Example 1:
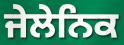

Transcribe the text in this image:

ਜੇਲੇਨਿਕ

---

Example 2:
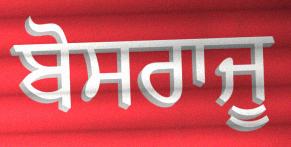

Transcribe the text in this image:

ਬੋਸਰਾਜੂ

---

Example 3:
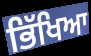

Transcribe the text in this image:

ਭਿੱਖਿਆ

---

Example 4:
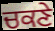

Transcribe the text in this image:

ਚਕਣੇ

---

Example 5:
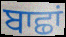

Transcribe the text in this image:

ਬਾਛਾਂ